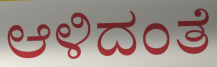
ಆಳಿದಂತೆ